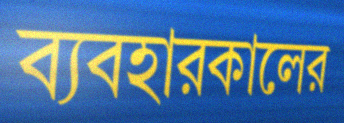
ব্যবহারকালের